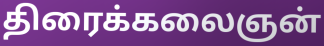
திரைக்கலைஞன்